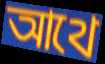
আথে